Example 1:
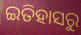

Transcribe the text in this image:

ଇତିହାସରୁ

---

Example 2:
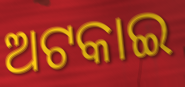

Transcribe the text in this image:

ଅଟକାଇ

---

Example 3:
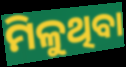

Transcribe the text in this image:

ମିଳୁଥିବା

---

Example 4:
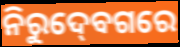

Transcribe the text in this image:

ନିରୁଦ୍‍ବେଗରେ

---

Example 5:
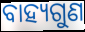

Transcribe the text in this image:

ବାହ୍ୟଗୁଣ